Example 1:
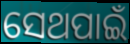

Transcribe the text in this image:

ସେଥପାଇଁ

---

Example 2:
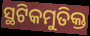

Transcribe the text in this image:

ସ୍ଥଟିକମୁତିକ୍ତ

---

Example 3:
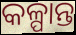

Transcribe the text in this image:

କଳ୍ପାନ୍ତ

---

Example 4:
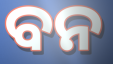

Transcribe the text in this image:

ବନ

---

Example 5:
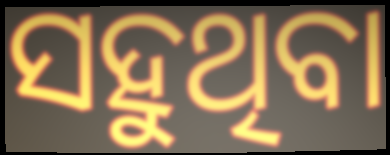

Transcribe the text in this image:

ସହୁଥିବା